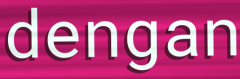
dengan